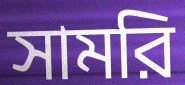
সামরি